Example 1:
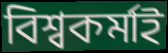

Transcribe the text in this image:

বিশ্বকর্মাই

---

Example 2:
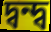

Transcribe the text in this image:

দ্বন্দ্ব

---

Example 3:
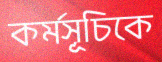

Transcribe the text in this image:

কর্মসূচিকে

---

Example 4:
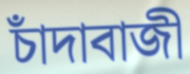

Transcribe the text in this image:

চাঁদাবাজী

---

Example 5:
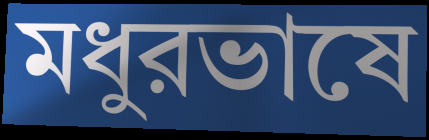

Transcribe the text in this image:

মধুরভাষে